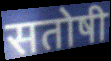
सतोषी